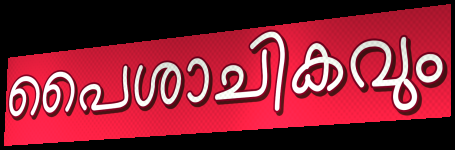
പൈശാചികവും